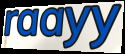
raayy